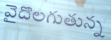
వైదొలగుతున్న